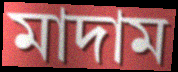
মাদাম